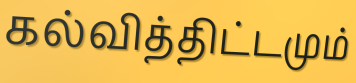
கல்வித்திட்டமும்